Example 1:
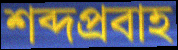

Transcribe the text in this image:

শব্দপ্রবাহ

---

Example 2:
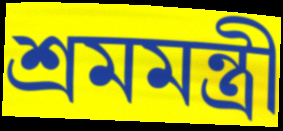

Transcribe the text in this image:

শ্রমমন্ত্রী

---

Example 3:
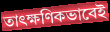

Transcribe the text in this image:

তাৎক্ষণিকভাবেই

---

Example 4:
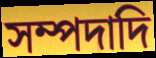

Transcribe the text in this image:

সম্পদাদি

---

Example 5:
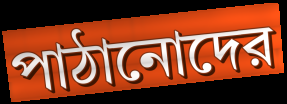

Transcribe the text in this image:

পাঠানোদের